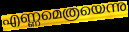
എണ്ണമെത്രയെന്നു